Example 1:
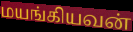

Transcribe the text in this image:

மயங்கியவன்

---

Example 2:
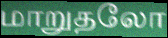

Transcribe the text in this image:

மாறுதலோ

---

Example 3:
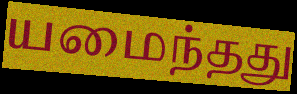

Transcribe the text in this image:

யமைந்தது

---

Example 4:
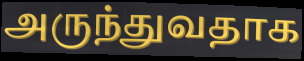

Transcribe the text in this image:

அருந்துவதாக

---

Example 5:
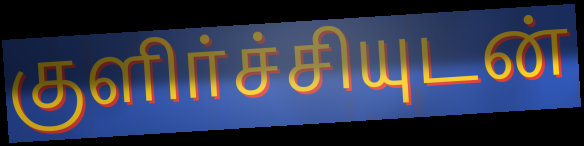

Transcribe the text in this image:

குளிர்ச்சியுடன்